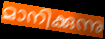
മാനിക്കുന്നു